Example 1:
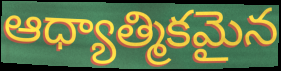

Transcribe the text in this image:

ఆధ్యాత్మికమైన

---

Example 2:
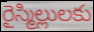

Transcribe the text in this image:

రైస్మిల్లులకు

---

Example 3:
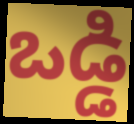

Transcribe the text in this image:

ఒడ్డి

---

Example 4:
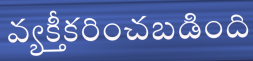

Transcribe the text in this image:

వ్యక్తీకరించబడింది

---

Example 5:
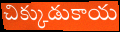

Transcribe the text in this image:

చిక్కుడుకాయ